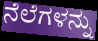
ನೆಲೆಗಳನ್ನು